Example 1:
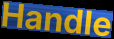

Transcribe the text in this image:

Handle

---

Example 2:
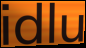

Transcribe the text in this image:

idlu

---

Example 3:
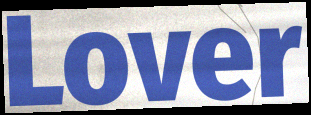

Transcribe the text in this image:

Lover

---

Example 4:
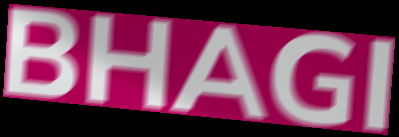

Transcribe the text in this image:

BHAGI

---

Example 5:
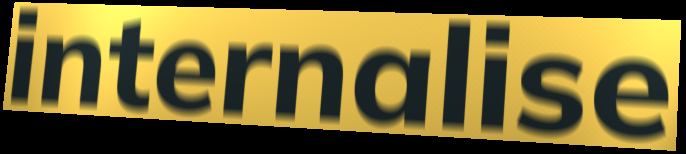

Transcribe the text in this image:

internalise